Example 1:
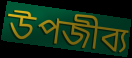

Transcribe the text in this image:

উপজীব্য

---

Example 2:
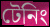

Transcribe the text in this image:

টেনিং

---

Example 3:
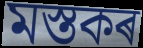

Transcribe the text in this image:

মস্তকৰ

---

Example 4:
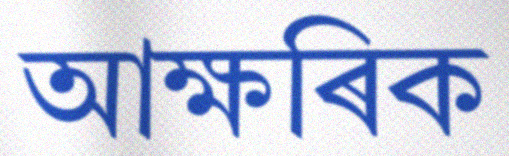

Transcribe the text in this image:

আক্ষৰিক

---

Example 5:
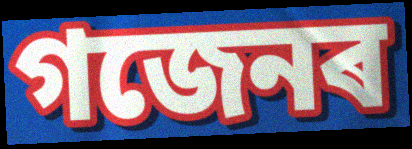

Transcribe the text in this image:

গজেনৰ